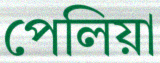
পেলিয়া